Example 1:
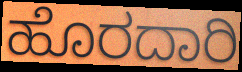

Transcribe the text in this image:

ಹೊರದಾರಿ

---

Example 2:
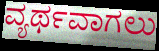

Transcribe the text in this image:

ವ್ಯರ್ಥವಾಗಲು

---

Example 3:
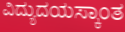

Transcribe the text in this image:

ವಿದ್ಯುದಯಸ್ಕಾಂತ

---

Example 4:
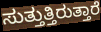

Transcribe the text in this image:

ಸುತ್ತುತ್ತಿರುತ್ತಾರೆ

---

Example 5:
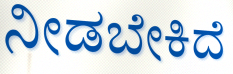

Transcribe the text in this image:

ನೀಡಬೇಕಿದೆ